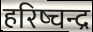
हरिष्चन्द्र